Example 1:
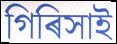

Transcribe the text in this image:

গিৰিসাই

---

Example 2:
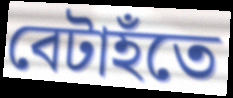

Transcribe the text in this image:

বেটাহঁতে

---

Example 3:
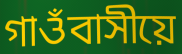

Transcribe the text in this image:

গাওঁবাসীয়ে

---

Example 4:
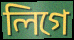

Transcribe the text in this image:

লিগে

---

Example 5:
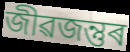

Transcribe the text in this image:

জীৱজন্তুৰ